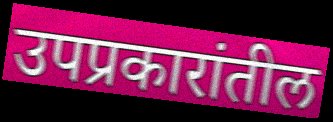
उपप्रकारांतील